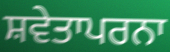
ਸ਼ਵੇਤਾਪਰਨਾ